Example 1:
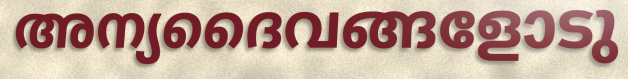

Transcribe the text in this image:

അന്യദൈവങ്ങളോടു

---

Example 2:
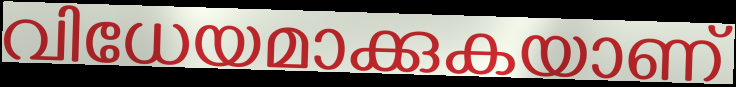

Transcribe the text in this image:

വിധേയമാക്കുകയാണ്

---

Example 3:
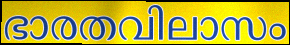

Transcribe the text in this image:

ഭാരതവിലാസം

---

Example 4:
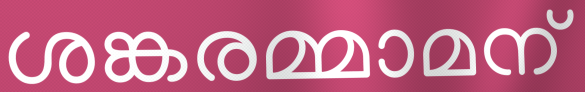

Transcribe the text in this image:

ശങ്കരമ്മാമന്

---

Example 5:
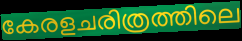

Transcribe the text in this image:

കേരളചരിത്രത്തിലെ